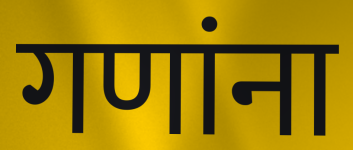
गणांना